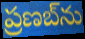
ప్రణబ్‌ను